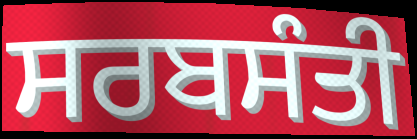
ਸਰਬਸੰਤੀ